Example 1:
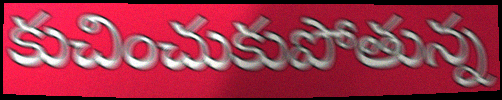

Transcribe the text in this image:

కుచించుకుపోతున్న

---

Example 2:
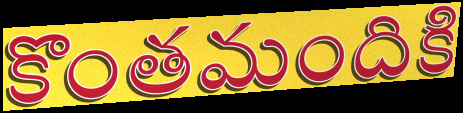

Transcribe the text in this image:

కొంతమందికి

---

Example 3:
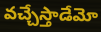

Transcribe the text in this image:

వచ్చేస్తాడేమో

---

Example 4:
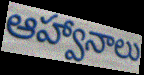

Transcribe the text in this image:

ఆహ్వానాలు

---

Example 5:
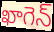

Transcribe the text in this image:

ఖాగెన్